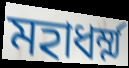
মহাধর্ম্ম